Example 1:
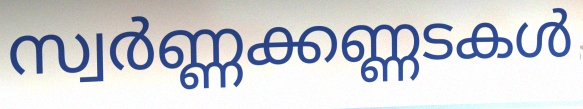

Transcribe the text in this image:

സ്വർണ്ണക്കണ്ണടകൾ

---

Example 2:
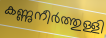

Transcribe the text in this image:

കണ്ണുനീർത്തുള്ളി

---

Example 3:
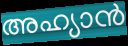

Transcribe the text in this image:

അഹ്യാൻ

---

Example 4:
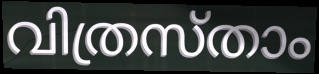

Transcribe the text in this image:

വിത്രസ്താം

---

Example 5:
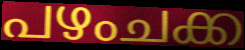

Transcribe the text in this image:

പഴംചക്ക